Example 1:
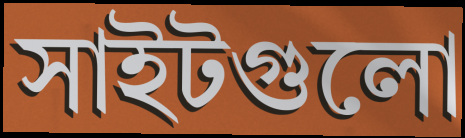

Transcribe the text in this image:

সাইটগুলো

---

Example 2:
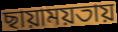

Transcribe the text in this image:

ছায়াময়তায়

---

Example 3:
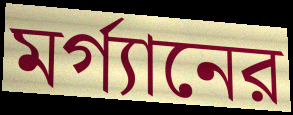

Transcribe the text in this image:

মর্গ্যানের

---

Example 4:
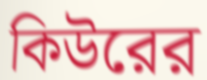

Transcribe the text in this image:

কিউরের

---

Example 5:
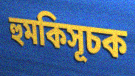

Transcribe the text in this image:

হুমকিসূচক